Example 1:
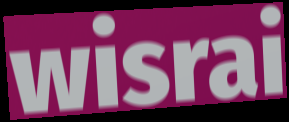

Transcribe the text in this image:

wisrai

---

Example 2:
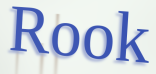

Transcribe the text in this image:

Rook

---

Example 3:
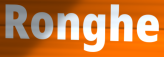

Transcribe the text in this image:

Ronghe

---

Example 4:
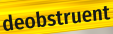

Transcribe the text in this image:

deobstruent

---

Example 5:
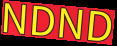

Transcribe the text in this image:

NDND